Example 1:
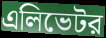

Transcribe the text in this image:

এলিভেটর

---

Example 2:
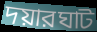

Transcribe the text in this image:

দয়ারঘাট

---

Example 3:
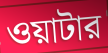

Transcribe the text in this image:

ওয়াটার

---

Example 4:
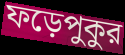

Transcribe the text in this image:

ফড়েপুকুর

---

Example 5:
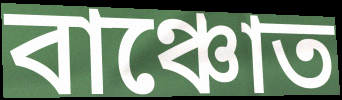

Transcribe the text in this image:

বাঞ্চোত